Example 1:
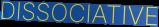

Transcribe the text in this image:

DISSOCIATIVE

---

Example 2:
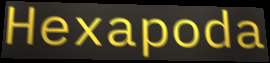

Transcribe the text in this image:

Hexapoda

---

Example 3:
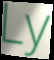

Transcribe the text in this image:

Ly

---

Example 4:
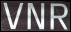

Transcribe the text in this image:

VNR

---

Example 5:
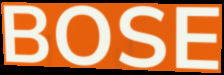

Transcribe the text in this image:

BOSE